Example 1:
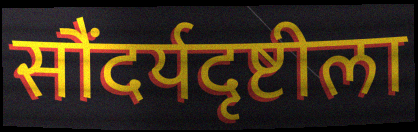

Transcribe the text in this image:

सौंदर्यदृष्टीला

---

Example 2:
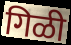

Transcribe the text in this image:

गिळी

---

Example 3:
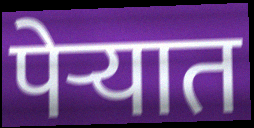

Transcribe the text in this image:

पेऱ्यात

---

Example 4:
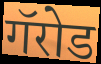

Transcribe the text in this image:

गॅरोड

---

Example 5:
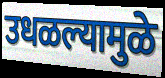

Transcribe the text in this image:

उधळल्यामुळे